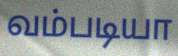
வம்படியா